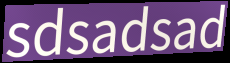
sdsadsad